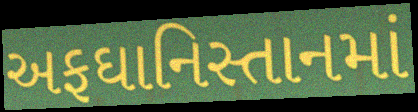
અફઘાનિસ્તાનમાં